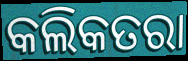
କଲିକତରା